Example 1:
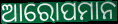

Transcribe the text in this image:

ଆରୋପମାନ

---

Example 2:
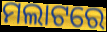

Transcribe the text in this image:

ମଲାଟରେ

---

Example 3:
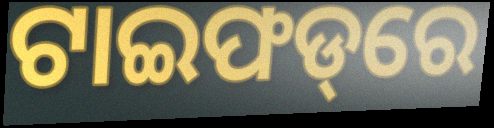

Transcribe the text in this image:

ଟାଇଫଡ୍‌ରେ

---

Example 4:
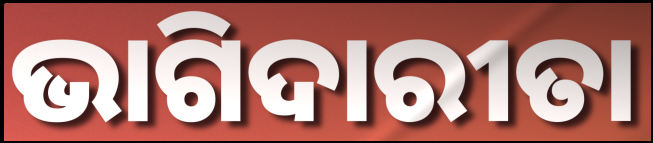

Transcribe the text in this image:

ଭାଗିଦାରୀତା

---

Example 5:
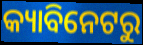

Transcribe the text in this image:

କ୍ୟାବିନେଟରୁ